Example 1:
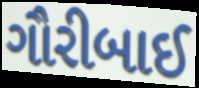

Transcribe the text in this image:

ગૌરીબાઈ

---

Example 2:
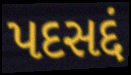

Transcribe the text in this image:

પદસદ્દં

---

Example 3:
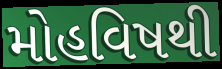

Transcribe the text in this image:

મોહવિષથી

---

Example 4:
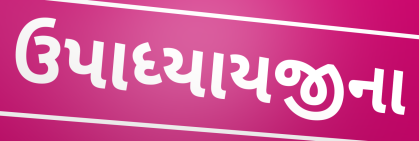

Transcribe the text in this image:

ઉપાધ્યાયજીના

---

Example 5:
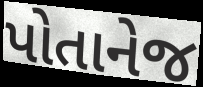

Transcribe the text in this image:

પોતાનેજ